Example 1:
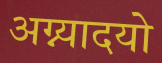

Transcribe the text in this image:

अग्न्यादयो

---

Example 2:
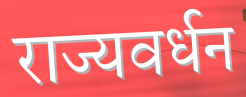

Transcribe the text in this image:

राज्यवर्धन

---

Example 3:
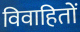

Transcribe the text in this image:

विवाहितों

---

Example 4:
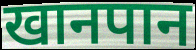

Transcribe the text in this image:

खानपान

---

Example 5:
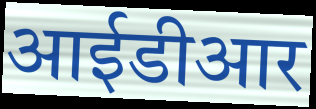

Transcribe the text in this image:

आईडीआर